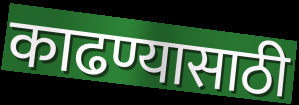
काढण्यासाठी